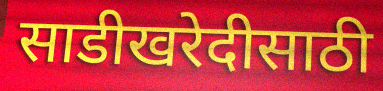
साडीखरेदीसाठी